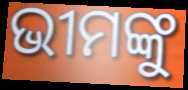
ଭୀମଙ୍କୁ